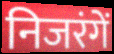
निजरंगें